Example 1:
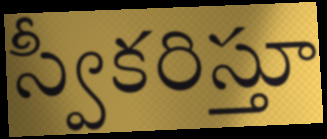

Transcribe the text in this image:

స్వీకరిస్తూ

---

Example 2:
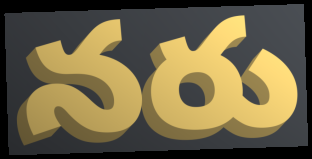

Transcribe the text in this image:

నరు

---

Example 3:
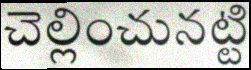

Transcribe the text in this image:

చెల్లించునట్టి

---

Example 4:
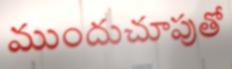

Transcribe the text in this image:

ముందుచూపుతో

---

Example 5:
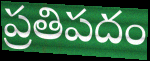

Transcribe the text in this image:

ప్రతిపదం